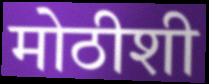
मोठीशी